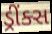
ડ્રીંક્સ